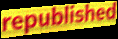
republished